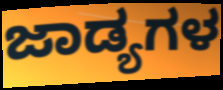
ಜಾಡ್ಯಗಳ